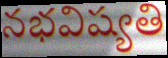
నభవిష్యతి